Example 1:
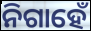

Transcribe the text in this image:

ନିଗାହେଁ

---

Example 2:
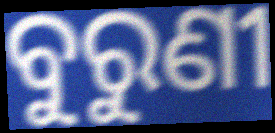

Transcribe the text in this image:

ବୁରୁଣୀ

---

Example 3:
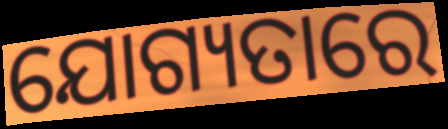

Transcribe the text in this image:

ଯୋଗ୍ୟତାରେ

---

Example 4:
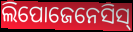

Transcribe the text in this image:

ଲିପୋଜେନେସିସ୍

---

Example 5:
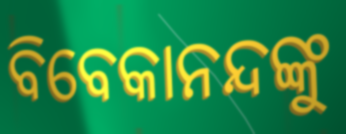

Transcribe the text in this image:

ବିବେକାନନ୍ଦଙ୍କୁ